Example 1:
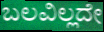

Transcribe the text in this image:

ಬಲವಿಲ್ಲದೇ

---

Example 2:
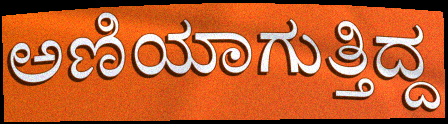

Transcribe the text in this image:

ಅಣಿಯಾಗುತ್ತಿದ್ದ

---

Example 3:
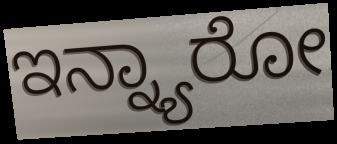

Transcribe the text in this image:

ಇನ್ನ್ಯಾರೋ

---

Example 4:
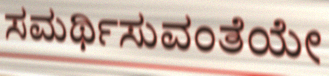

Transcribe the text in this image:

ಸಮರ್ಥಿಸುವಂತೆಯೇ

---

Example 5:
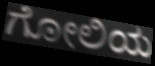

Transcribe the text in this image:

ಗೋಲಿಯ